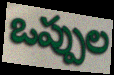
ఒప్పుల